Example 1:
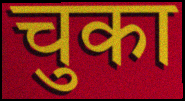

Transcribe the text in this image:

चुका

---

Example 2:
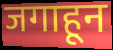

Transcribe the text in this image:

जगाहून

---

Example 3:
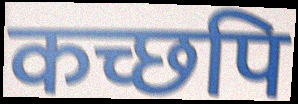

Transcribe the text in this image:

कच्छपि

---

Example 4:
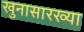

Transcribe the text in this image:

खुनासारख्या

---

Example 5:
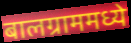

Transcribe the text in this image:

बालग्राममध्ये